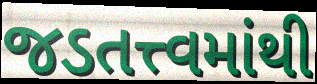
જડતત્ત્વમાંથી